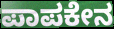
ಪಾಪಕೇನ